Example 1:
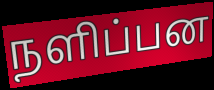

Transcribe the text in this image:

நளிப்பன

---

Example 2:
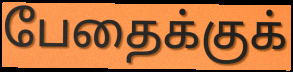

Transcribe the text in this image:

பேதைக்குக்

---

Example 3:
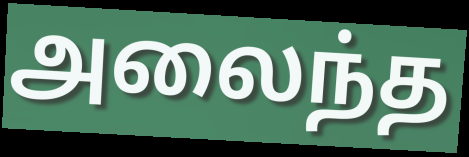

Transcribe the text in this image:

அலைந்த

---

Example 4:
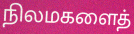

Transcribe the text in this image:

நிலமகளைத்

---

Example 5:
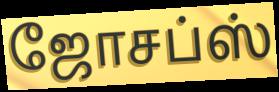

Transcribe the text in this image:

ஜோசப்ஸ்